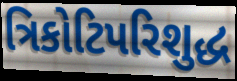
ત્રિકોટિપરિશુદ્ધ